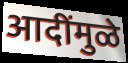
आदींमुळे